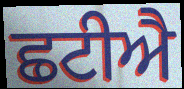
ਛਟੀਐ